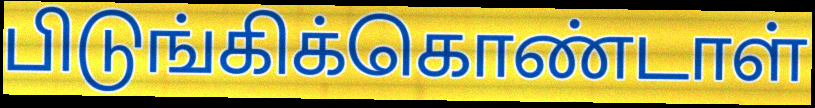
பிடுங்கிக்கொண்டாள்